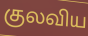
குலவிய